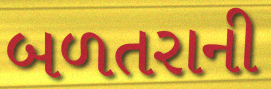
બળતરાની